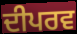
ਦੀਪਰਵ